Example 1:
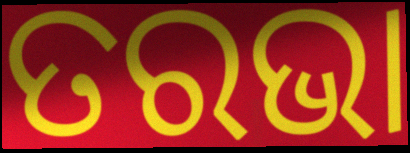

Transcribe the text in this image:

ତରଭା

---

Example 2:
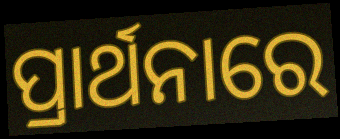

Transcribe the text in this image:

ପ୍ରାର୍ଥନାରେ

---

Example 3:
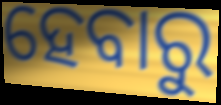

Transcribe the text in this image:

ହେବାରୁ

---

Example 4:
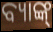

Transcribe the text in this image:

ବ୍ୟାଙ୍କ୍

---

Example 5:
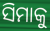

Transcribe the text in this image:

ସିମାକୁ